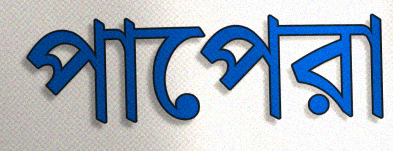
পাপেরা